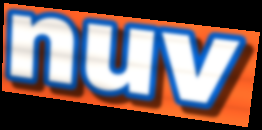
nuv